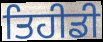
ਤਿਹੀਡੀ